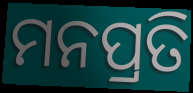
ମନପ୍ରତି